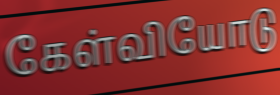
கேள்வியோடு